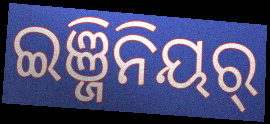
ଇଞ୍ଜିନିୟର୍